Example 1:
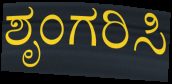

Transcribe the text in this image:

ಶೃಂಗರಿಸಿ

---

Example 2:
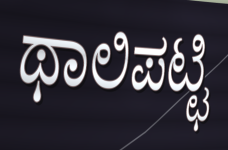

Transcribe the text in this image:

ಥಾಲಿಪಟ್ಟಿ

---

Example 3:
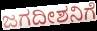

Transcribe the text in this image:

ಜಗದೀಶನಿಗೆ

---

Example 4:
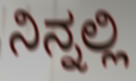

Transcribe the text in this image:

ನಿನ್ನಲ್ಲಿ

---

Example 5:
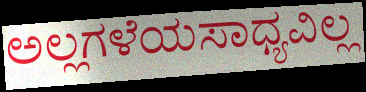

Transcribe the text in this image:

ಅಲ್ಲಗಳೆಯಸಾಧ್ಯವಿಲ್ಲ